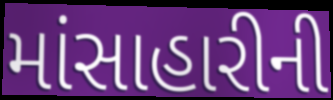
માંસાહારીની